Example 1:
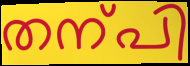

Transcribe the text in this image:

തന്പി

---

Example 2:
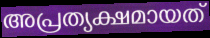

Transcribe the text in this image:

അപ്രത്യക്ഷമായത്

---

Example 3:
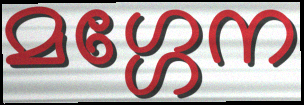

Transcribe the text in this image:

മഗ്ഗേന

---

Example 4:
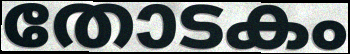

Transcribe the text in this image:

തോടകം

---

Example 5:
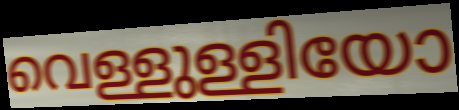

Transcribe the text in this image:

വെള്ളുള്ളിയോ